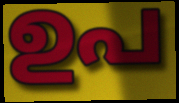
ഉപ